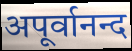
अपूर्वानन्द